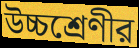
উচ্চশ্রেণীর